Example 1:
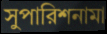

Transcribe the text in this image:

সুপারিশনামা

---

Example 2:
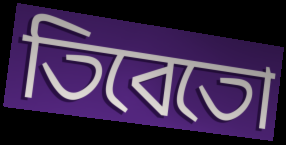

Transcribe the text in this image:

তিবেতো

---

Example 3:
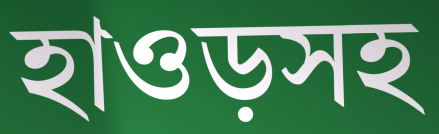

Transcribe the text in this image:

হাওড়সহ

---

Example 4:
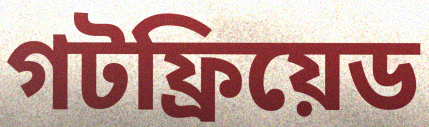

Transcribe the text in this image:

গটফ্রিয়েড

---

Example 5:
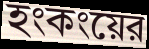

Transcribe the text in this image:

হংকংয়ের